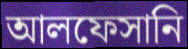
আলফেসানি